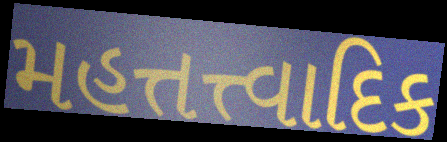
મહત્તત્ત્વાદિક